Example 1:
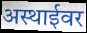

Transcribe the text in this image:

अस्थाईवर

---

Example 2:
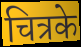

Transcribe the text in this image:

चित्रके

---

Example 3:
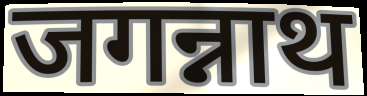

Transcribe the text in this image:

जगन्नाथ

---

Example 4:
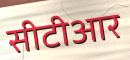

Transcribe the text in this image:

सीटीआर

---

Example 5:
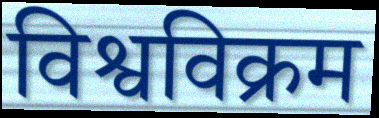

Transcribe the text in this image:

विश्वविक्रम